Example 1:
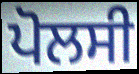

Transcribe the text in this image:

ਪੋਲਸੀ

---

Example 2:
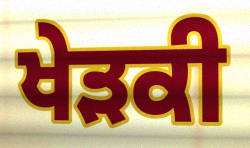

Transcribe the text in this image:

ਖੇੜਕੀ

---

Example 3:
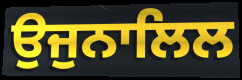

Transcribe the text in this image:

ਉਜੁਨਾਲਿਲ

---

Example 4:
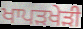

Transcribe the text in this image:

ਖਾਪੜਖੇੜੀ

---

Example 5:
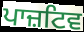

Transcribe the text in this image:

ਪਾਜ਼ਟਿਵ